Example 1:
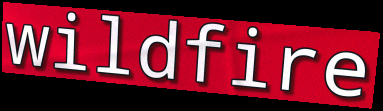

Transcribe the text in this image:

wildfire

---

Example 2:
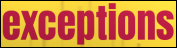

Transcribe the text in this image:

exceptions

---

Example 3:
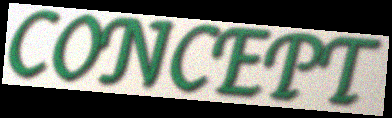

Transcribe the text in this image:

CONCEPT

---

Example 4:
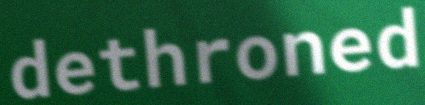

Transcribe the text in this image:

dethroned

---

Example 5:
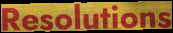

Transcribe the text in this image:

Resolutions